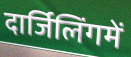
दार्जिलिंगमें